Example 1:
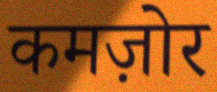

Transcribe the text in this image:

कमज़ोर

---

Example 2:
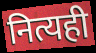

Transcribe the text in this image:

नित्यही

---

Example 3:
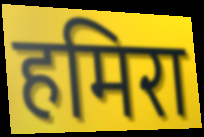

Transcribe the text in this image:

हमिरा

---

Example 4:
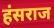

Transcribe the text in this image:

हंसराज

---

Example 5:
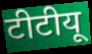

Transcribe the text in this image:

टीटीयू